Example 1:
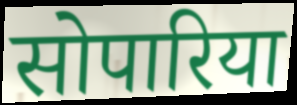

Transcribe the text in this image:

सोपारिया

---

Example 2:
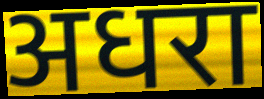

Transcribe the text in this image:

अधरा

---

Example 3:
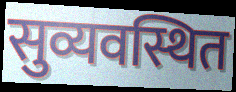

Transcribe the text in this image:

सुव्यवस्थित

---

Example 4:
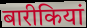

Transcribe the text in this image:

बारीकियां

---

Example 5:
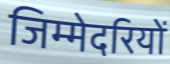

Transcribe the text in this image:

जिम्मेदरियों